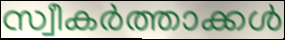
സ്വീകർത്താക്കൾ